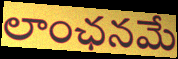
లాంఛనమే